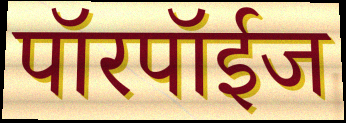
पॉरपॉईज